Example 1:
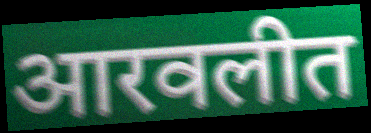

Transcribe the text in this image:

आरवलीत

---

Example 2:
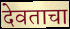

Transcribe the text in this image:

देवताचा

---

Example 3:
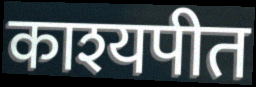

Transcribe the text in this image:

काश्यपीत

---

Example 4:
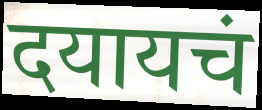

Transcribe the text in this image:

दयायचं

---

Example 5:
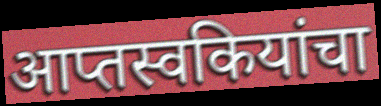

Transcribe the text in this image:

आप्तस्वकियांचा